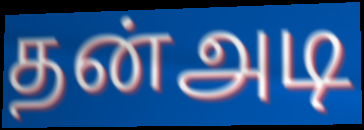
தன்அடி